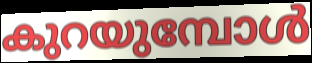
കുറയുമ്പോൾ